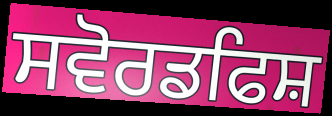
ਸਵੋਰਡਫਿਸ਼